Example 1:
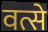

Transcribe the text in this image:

वत्से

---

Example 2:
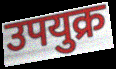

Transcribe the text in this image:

उपयुक्र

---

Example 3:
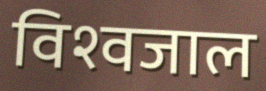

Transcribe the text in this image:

विश्वजाल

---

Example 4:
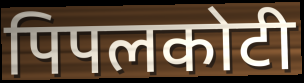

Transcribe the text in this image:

पिपलकोटी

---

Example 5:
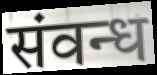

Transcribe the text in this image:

संवन्ध